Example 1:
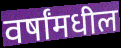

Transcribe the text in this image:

वर्षांमधील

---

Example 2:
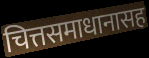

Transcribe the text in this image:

चित्तसमाधानासह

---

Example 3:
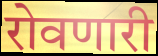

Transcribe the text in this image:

रोवणारी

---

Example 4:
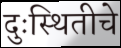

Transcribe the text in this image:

दुःस्थितीचे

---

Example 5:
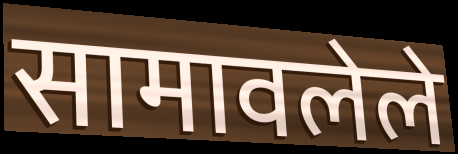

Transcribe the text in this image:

सामावलेले